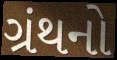
ગ્રંથનો